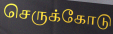
செருக்கோடு